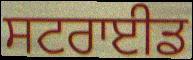
ਸਟਰਾਈਡ